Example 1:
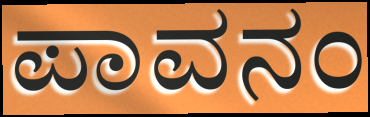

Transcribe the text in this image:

ಪಾವನಂ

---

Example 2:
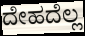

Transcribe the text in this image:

ದೇಹದೆಲ್ಲ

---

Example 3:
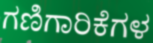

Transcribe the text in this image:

ಗಣಿಗಾರಿಕೆಗಳ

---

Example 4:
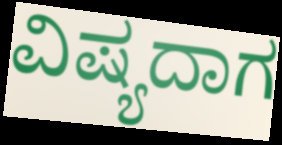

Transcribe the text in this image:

ವಿಷ್ಯದಾಗ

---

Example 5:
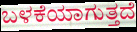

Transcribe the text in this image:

ಬಳಕೆಯಾಗುತ್ತದೆ